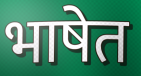
भाषेत